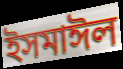
ইসমাঈল